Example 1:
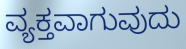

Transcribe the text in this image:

ವ್ಯಕ್ತವಾಗುವುದು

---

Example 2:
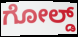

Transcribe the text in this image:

ಗೋಲ್ಡ್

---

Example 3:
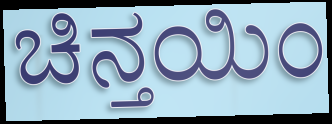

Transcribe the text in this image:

ಚಿನ್ತಯಿಂ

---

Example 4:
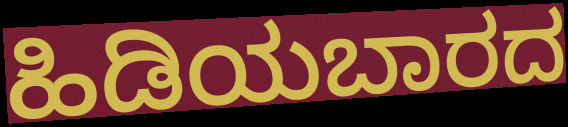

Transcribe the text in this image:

ಹಿಡಿಯಬಾರದ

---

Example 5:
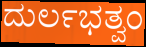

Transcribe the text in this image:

ದುರ್ಲಭತ್ವಂ